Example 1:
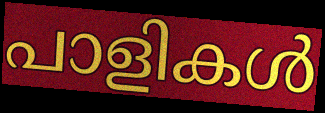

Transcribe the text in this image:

പാളികൾ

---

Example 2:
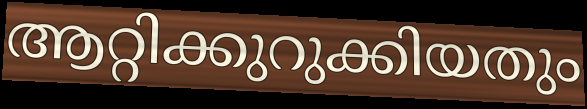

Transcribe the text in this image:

ആറ്റിക്കുറുക്കിയതും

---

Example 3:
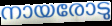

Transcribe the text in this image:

നായരോടു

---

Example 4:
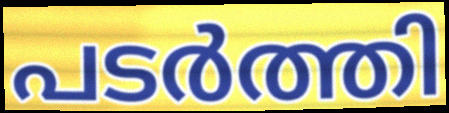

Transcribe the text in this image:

പടർത്തി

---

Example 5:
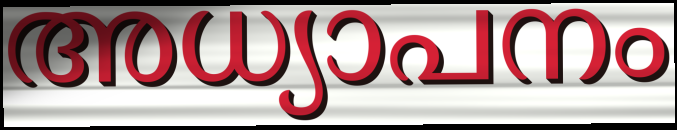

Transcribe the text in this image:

അധ്യാപനം